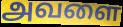
அவளை